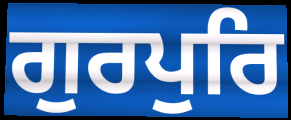
ਗੁਰਪੁਰਿ